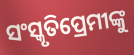
ସଂସ୍କୃତିପ୍ରେମୀଙ୍କୁ